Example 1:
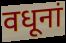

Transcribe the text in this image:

वधूनां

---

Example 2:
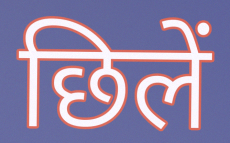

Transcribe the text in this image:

छिलें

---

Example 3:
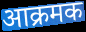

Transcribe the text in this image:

आक्रमक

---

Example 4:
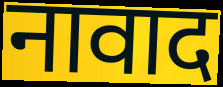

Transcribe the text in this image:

नावाद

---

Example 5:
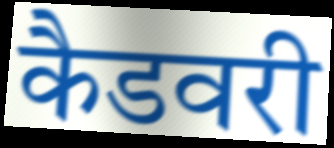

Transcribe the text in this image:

कैडवरी